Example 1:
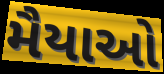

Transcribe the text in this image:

મૈયાઓ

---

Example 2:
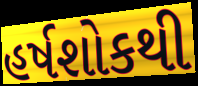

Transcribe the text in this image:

હર્ષશોકથી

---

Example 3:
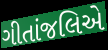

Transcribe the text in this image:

ગીતાંજલિએ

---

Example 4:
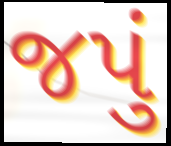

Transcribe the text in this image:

જપું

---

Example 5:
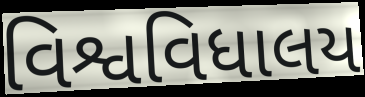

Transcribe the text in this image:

વિશ્વવિધાલય